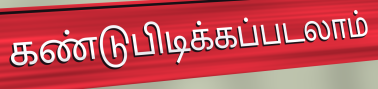
கண்டுபிடிக்கப்படலாம்